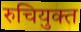
रुचियुक्त